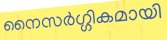
നൈസർഗ്ഗികമായി